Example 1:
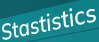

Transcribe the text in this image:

Stastistics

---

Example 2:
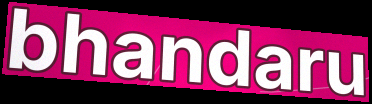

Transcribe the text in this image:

bhandaru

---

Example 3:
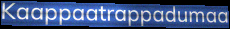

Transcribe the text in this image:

Kaappaatrappadumaa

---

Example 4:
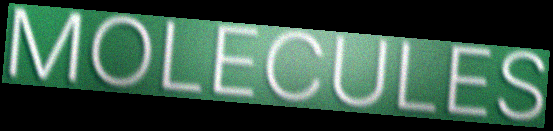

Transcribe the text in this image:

MOLECULES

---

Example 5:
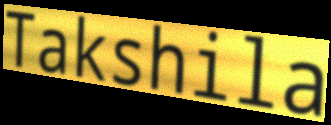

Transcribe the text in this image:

Takshila